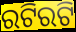
ରଟିରଟି